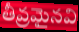
తీవ్రమైనవి